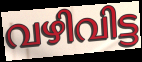
വഴിവിട്ട